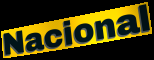
Nacional